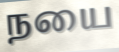
நயை